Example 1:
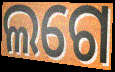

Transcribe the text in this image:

ଲଗେ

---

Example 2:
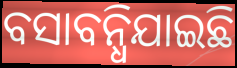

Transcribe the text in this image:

ବସାବନ୍ଧିଯାଇଛି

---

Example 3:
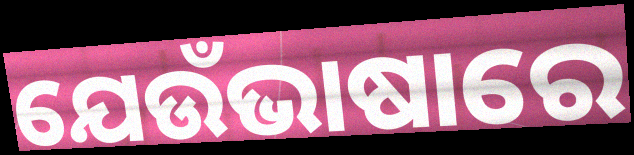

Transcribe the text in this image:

ଯେଉଁଭାଷାରେ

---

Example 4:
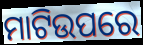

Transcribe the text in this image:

ମାଟିଉପରେ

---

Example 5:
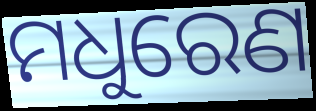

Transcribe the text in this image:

ମଧୁରେଣ